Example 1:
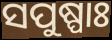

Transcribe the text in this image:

ସପୁଷ୍ପାଃ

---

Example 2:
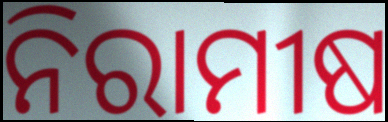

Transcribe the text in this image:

ନିରାମୀଷ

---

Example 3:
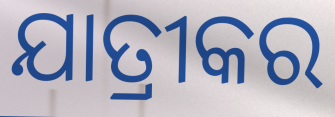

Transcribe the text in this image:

ଯାତ୍ରୀକର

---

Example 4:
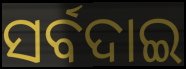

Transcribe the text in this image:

ସର୍ବଦାଇ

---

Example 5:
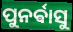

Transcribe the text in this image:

ପୁନର୍ଵାସୁ